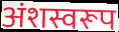
अंशस्वरूप